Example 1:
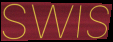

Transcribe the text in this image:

SWIS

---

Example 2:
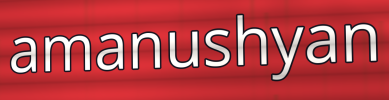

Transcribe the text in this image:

amanushyan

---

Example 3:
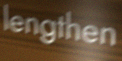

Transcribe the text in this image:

lengthen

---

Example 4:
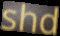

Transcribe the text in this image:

shd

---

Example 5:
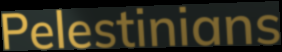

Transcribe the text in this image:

Pelestinians